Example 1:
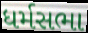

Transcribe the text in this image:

ધર્મસભા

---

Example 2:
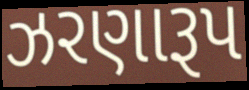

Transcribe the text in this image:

ઝરણારૂપ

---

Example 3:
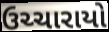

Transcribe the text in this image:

ઉચ્ચારાયો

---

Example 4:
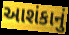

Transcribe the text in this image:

આશંકાનું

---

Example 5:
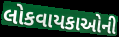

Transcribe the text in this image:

લોકવાયકાઓની